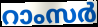
റാംസർ